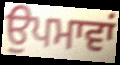
ਉਪਮਾਵਾਂ